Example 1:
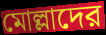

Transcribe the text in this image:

মোল্লাদের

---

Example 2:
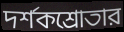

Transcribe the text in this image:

দর্শকশ্রোতার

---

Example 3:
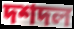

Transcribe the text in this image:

দশদল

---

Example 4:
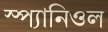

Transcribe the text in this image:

স্প্যানিওল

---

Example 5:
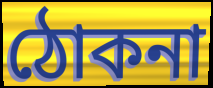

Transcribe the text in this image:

ঠোকনা